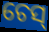
ଚେସ୍